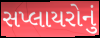
સપ્લાયરોનું